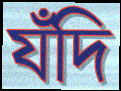
যঁদি